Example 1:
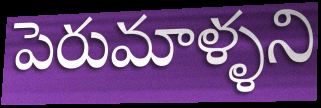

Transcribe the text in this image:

పెరుమాళ్ళని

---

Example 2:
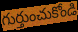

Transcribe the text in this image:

గుర్తుంచుకోండి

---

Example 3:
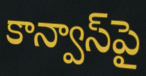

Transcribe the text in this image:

కాన్వాస్‌పై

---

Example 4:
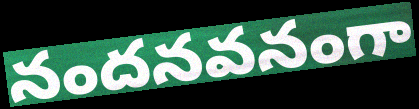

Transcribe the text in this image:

నందనవనంగా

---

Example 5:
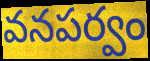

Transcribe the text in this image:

వనపర్వం